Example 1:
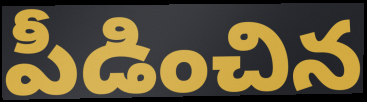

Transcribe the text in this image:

పీడించిన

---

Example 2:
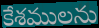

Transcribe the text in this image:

కేశములను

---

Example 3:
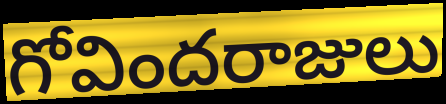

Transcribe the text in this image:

గోవిందరాజులు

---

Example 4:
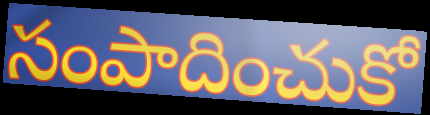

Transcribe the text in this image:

సంపాదించుకో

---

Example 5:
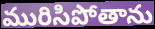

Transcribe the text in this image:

మురిసిపోతాను